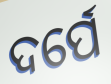
ଦର୍ପେ